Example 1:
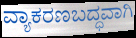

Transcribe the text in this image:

ವ್ಯಾಕರಣಬದ್ಧವಾಗಿ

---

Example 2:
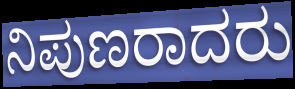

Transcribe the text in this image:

ನಿಪುಣರಾದರು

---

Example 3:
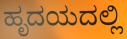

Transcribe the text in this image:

ಹೃದಯದಲ್ಲಿ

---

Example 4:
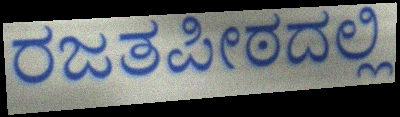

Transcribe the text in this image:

ರಜತಪೀಠದಲ್ಲಿ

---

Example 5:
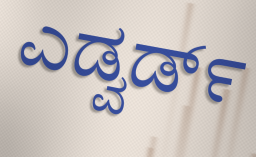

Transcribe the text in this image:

ಎಡ್ವರ್ಡ್